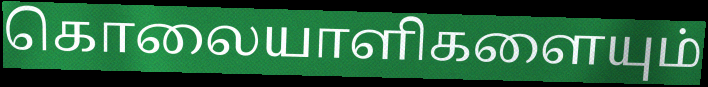
கொலையாளிகளையும்